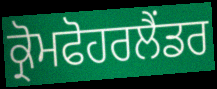
ਕ੍ਰੋਮਫੋਹਰਲੈਂਡਰ